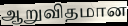
ஆறுவிதமான